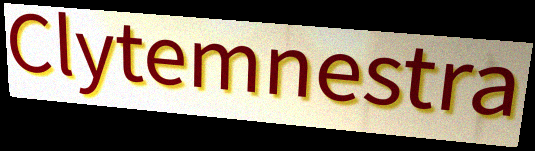
Clytemnestra